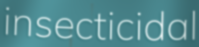
insecticidal